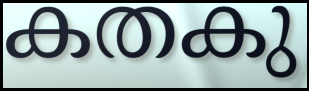
കതകു